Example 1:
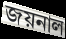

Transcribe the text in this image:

জয়নাল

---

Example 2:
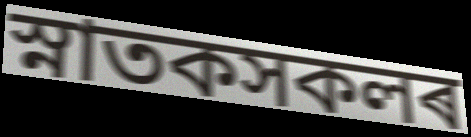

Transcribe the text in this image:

স্নাতকসকলৰ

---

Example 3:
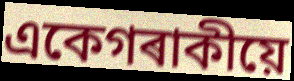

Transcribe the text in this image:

একেগৰাকীয়ে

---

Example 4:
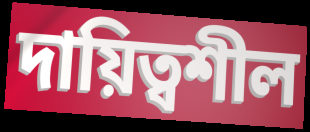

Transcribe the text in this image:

দায়িত্বশীল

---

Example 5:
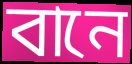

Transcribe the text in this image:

বানে